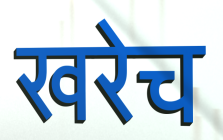
खरेच